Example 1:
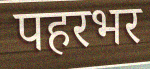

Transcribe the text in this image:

पहरभर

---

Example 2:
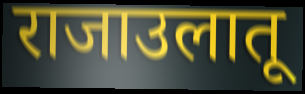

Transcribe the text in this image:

राजाउलातू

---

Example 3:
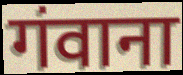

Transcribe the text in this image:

गंवाना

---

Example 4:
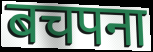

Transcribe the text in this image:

बचपना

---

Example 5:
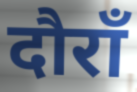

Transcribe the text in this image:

दौराँ